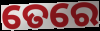
ତେରେ